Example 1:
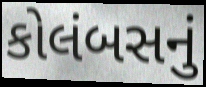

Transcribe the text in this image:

કોલંબસનું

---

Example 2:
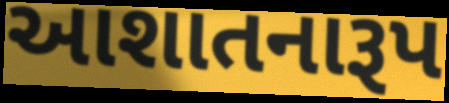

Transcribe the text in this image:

આશાતનારૂપ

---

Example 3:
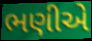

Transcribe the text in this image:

ભણીએ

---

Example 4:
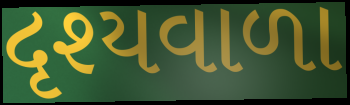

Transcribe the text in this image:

દૃશ્યવાળા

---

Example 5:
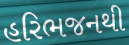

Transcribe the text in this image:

હરિભજનથી